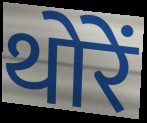
थोरें